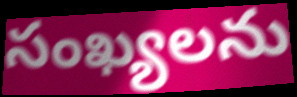
సంఖ్యలను